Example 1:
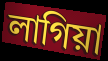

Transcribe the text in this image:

লাগিয়া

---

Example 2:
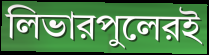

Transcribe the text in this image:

লিভারপুলেরই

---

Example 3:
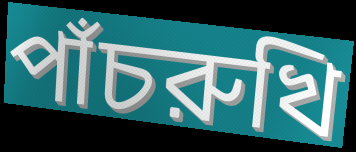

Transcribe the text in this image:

পাঁচরুখি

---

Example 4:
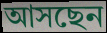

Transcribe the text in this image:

আসছেন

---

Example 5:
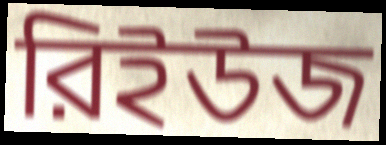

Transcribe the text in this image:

রিইউজ